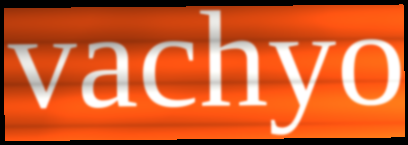
vachyo